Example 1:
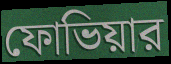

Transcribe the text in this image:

ফোভিয়ার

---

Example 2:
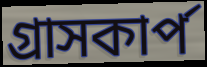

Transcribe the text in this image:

গ্রাসকার্প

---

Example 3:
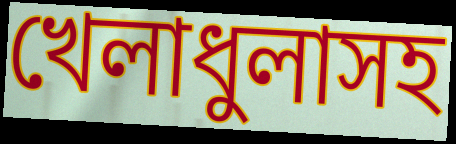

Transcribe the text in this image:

খেলাধুলাসহ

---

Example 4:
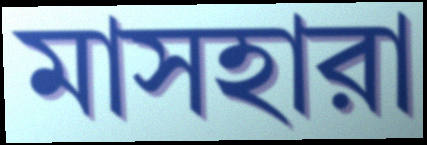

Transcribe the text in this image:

মাসহারা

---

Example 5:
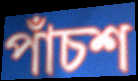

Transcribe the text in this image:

পাঁচশ